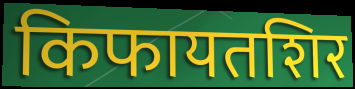
किफायतशिर